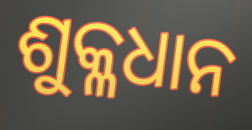
ଶୁକ୍ଳଧାନ